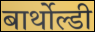
बार्थोल्डी